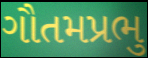
ગૌતમપ્રભુ